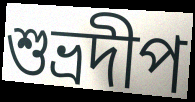
শুভ্রদীপ